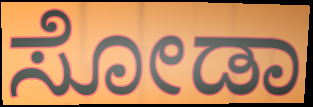
ಸೋಡಾ